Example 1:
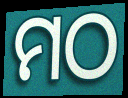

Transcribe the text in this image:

ମଠ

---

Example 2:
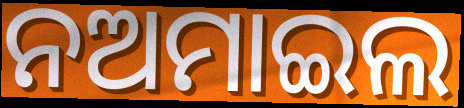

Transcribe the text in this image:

ନଅମାଇଲ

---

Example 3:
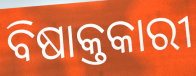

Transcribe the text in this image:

ବିଷାକ୍ତକାରୀ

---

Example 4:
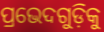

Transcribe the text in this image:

ପ୍ରଭେଦଗୁଡ଼ିକୁ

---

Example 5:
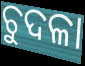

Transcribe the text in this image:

ଚୁଦଳା